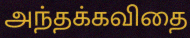
அந்தக்கவிதை